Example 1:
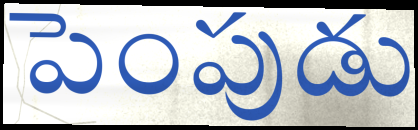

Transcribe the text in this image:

పెంపుడు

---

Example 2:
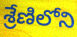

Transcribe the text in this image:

శ్రేణిలోని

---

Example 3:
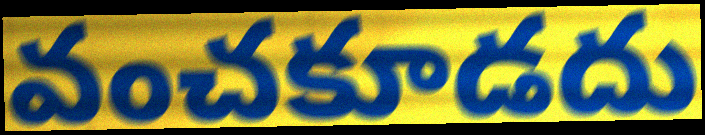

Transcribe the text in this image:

వంచకూడదు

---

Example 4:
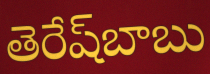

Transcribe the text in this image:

తెరేష్‌బాబు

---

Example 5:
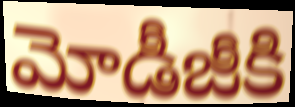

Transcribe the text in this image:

మోడీజీకి